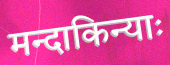
मन्दाकिन्याः